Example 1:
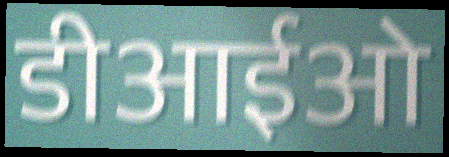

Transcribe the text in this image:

डीआईओ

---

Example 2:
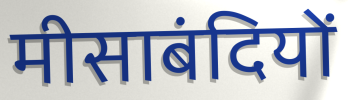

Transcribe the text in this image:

मीसाबंदियों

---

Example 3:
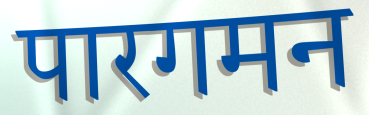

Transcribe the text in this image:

पारगमन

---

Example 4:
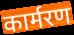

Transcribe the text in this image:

कार्मरण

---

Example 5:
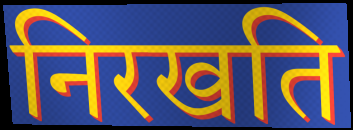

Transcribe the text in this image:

निरखति